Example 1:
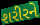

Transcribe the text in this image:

શરીરને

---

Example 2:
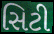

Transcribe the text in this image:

સિટી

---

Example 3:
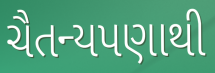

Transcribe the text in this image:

ચૈતન્યપણાથી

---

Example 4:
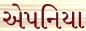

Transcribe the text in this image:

એપનિયા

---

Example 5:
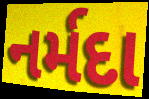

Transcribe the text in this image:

નર્મદા